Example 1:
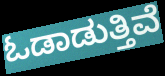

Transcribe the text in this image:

ಓಡಾಡುತ್ತಿವೆ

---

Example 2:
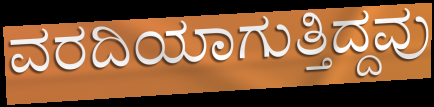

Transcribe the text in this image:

ವರದಿಯಾಗುತ್ತಿದ್ದವು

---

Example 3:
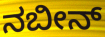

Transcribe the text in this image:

ನಬೀನ್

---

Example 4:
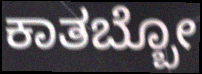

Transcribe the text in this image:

ಕಾತಬ್ಬೋ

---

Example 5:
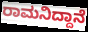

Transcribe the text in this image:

ರಾಮನಿದ್ದಾನೆ